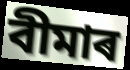
বীমাৰ